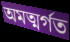
অমত্মর্গত